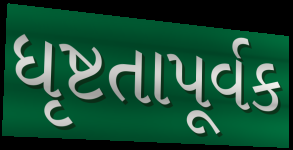
ધૃષ્ટતાપૂર્વક